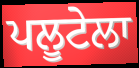
ਪਲੂਟੇਲਾ